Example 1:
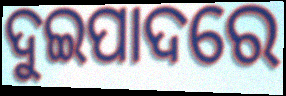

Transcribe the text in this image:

ଦୁଇପାଦରେ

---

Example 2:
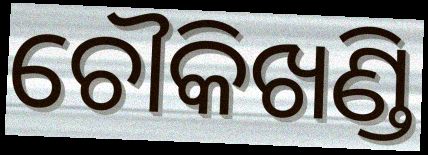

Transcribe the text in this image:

ଚୌକିଖଣ୍ଡି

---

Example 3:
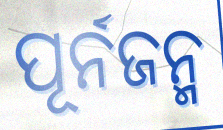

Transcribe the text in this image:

ପୂର୍ନଜନ୍ମ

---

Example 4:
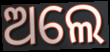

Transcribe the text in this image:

ଅଲେ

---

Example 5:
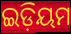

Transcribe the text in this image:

ଇଡ଼ିୟମ